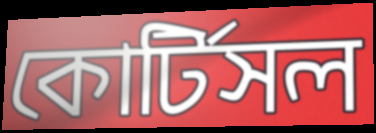
কোর্টিসল